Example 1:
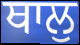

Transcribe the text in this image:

ਥਾਲੁ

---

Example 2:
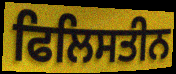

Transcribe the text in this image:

ਫਿਲਿਸਤੀਨ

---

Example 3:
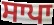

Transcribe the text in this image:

ਸਾਪਾ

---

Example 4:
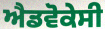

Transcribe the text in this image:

ਐਡਵੋਕੇਸੀ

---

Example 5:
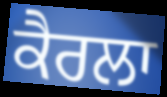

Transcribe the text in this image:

ਕੈਰਲਾ